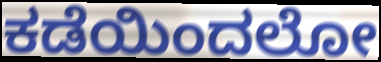
ಕಡೆಯಿಂದಲೋ